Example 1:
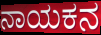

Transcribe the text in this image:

ನಾಯಕನ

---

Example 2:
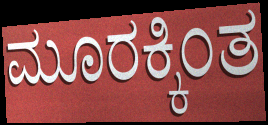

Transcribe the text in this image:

ಮೂರಕ್ಕಿಂತ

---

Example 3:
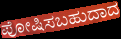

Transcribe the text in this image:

ಪೋಷಿಸಬಹುದಾದ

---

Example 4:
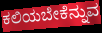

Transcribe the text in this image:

ಕಲಿಯಬೇಕೆನ್ನುವ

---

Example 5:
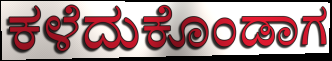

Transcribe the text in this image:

ಕಳೆದುಕೊಂಡಾಗ